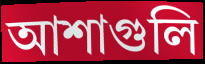
আশাগুলি